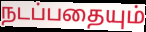
நடப்பதையும்